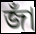
জাঁ